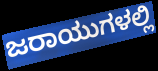
ಜರಾಯುಗಳಲ್ಲಿ